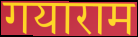
गयाराम